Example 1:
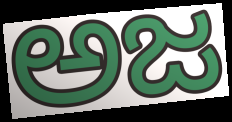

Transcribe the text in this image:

ಅಜ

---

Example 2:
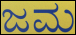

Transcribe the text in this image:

ಜಮ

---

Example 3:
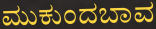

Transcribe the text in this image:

ಮುಕುಂದಬಾವ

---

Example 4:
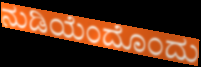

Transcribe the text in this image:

ನುಡಿಯೆಂದೊಂದು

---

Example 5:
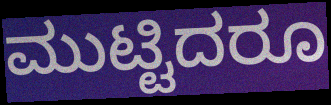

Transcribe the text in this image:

ಮುಟ್ಟಿದರೂ